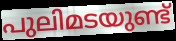
പുലിമടയുണ്ട്